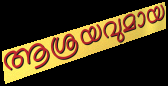
ആശ്രയവുമായ